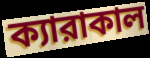
ক্যারাকাল